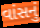
વાંસનું